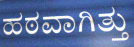
ಹಠವಾಗಿತ್ತು